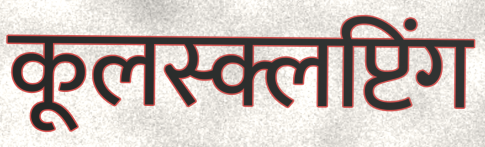
कूलस्क्लप्टिंग